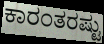
ಕಾರಂತರಷ್ಟು